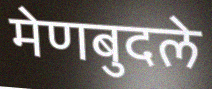
मेणबुदले